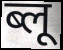
ब्लू